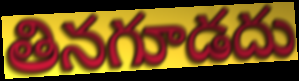
తినగూడదు